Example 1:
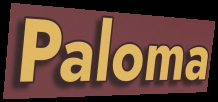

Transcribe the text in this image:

Paloma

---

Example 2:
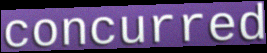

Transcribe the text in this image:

concurred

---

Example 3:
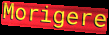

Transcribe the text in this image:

Morigere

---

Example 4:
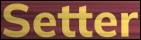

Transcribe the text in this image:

Setter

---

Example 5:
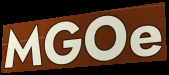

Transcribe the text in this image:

MGOe